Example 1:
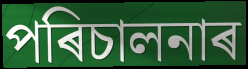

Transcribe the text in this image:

পৰিচালনাৰ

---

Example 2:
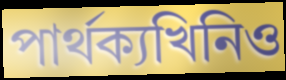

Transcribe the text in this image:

পাৰ্থক্যখিনিও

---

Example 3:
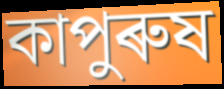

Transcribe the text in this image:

কাপুৰুষ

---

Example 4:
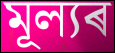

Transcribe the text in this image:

মূল্যৰ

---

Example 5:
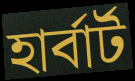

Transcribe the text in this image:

হাৰ্বাৰ্ট